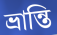
ভ্ৰান্তি